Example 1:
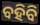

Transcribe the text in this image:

ବହିବି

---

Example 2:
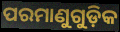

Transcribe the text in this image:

ପରମାଣୁଗୁଡ଼ିକ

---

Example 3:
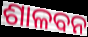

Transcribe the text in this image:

ଶାଳବନ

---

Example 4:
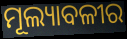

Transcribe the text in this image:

ମୂଲ୍ୟାବଳୀର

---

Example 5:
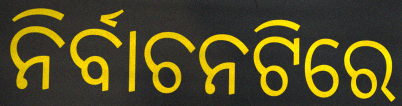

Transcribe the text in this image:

ନିର୍ବାଚନଟିରେ